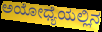
ಅಯೋಧ್ಯೆಯಲ್ಲಿನ